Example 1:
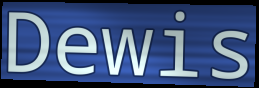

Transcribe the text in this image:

Dewis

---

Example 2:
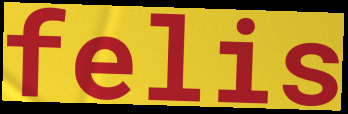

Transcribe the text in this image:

felis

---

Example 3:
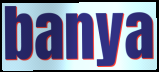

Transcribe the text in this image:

banya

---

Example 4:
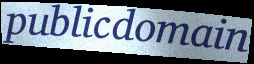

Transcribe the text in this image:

publicdomain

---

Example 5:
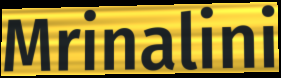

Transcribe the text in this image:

Mrinalini